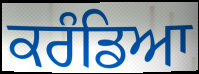
ਕਰੰਡਿਆ